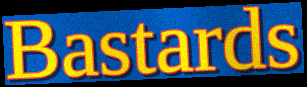
Bastards